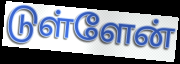
டுள்ளேன்